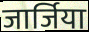
जार्जिया